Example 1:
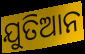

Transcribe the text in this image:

ଯୁତିଆନ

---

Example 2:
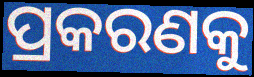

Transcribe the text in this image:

ପ୍ରକରଣକୁ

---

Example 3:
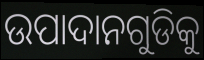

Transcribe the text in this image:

ଉପାଦାନଗୁଡିକୁ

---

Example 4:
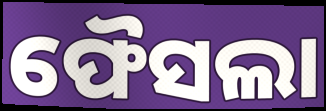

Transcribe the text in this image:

ଫୈସଲା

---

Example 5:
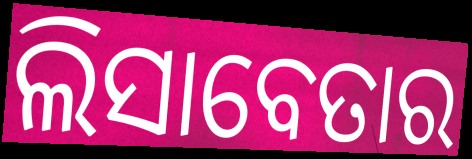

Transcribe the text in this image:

ଲିସାବେତାର